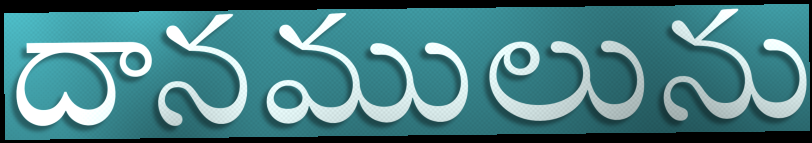
దానములును